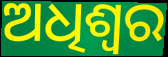
ଅଧିଶ୍ବର